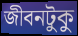
জীবনটুকু